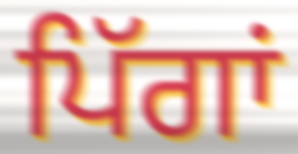
ਪਿੱਗਾਂ